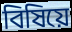
বিষিয়ে